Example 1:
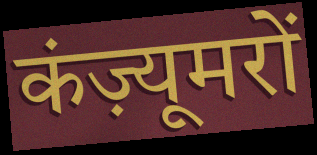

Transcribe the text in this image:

कंज़्यूमरों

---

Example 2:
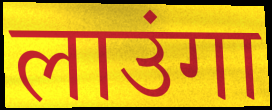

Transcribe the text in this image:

लाउंगा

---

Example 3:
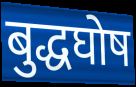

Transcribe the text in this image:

बुद्धघोष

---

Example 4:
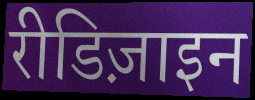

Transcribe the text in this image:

रीडिज़ाइन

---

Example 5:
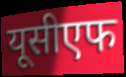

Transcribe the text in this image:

यूसीएफ